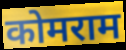
कोमराम